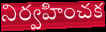
నిర్వహించక